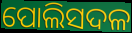
ପୋଲିସଦଳ